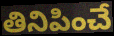
తినిపించే